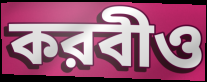
করবীও